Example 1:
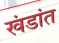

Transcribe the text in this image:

खंडांत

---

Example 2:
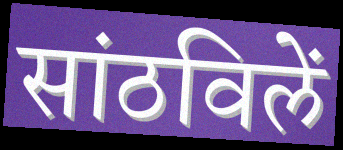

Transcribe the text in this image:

सांठविलें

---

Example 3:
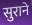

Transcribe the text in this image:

सुराने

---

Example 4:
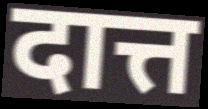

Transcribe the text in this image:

दात्त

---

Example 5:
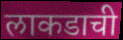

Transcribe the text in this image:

लाकडाची